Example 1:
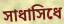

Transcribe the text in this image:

সাধাসিধে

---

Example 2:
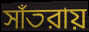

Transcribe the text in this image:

সাঁতরায়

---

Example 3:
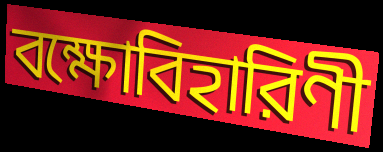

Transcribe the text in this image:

বক্ষোবিহারিণী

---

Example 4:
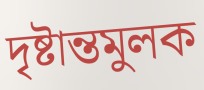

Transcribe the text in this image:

দৃষ্টান্তমুলক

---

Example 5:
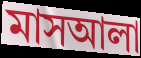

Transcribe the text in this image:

মাসআলা